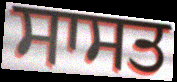
ਸਾਸਤ